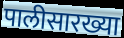
पालीसारख्या